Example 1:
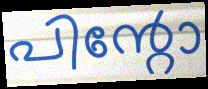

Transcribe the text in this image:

പിന്റോ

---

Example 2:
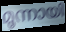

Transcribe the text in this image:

മൂന്നായി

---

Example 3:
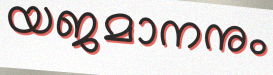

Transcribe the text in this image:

യജമാനനും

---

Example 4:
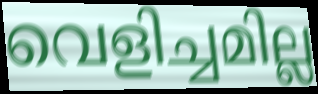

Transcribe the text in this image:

വെളിച്ചമില്ല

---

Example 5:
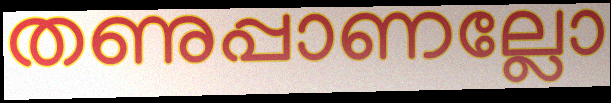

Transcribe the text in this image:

തണുപ്പാണല്ലോ